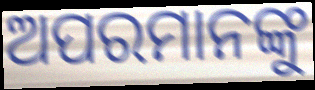
ଅପରମାନଙ୍କୁ